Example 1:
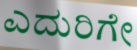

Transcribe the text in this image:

ಎದುರಿಗೇ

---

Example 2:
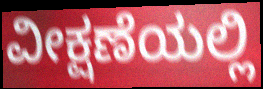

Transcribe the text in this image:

ವೀಕ್ಷಣೆಯಲ್ಲಿ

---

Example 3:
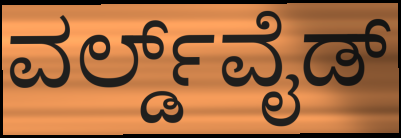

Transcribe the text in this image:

ವರ್ಲ್ಡ್‌ವೈಡ್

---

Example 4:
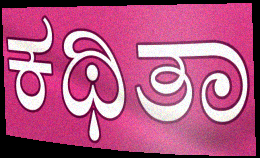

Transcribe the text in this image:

ಕಥಿತಾ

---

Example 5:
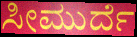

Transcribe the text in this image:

ಸೀಮುರ್ದೆ